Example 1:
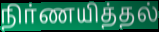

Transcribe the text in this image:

நிர்ணயித்தல்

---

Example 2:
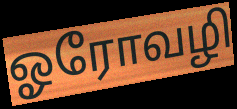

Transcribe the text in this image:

ஓரோவழி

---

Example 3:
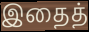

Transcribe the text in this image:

இதைத்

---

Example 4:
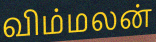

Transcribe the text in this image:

விம்மலன்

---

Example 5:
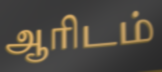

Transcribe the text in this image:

ஆரிடம்